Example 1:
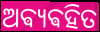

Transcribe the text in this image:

ଅଵ୍ୟଵହିତ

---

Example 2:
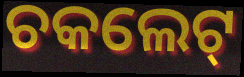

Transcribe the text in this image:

ଚକଲେଟ୍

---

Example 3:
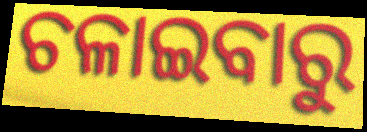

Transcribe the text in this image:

ଚଳାଇବାରୁ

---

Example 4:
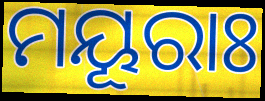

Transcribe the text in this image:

ମୟୂରାଃ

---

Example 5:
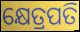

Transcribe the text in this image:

କ୍ଷେତ୍ରପତି